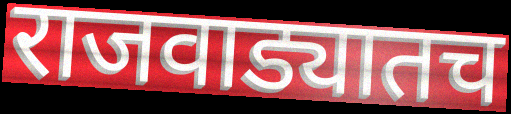
राजवाड्यातच